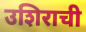
उशिराची